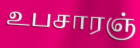
உபசாரஞ்